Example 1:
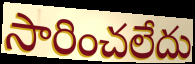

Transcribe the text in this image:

సారించలేదు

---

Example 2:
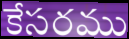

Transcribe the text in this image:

కేసరము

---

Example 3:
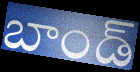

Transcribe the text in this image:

బాండ్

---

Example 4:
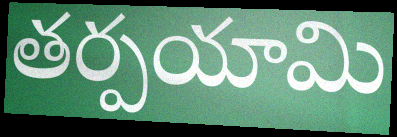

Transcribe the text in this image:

తర్పయామి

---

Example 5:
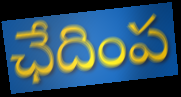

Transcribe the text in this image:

ఛేదింప